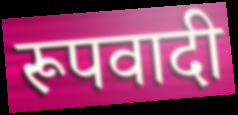
रूपवादी